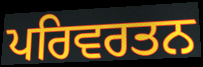
ਪਰਿਵਰਤਨ